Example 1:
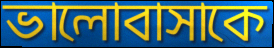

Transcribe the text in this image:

ভালোবাসাকে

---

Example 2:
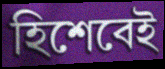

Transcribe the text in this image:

হিশেবেই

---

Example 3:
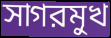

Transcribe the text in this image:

সাগরমুখ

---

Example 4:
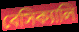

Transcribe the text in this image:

বেসিক্যালি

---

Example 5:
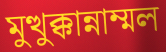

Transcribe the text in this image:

মুত্থুক্কান্নাম্মল